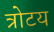
त्रोटय